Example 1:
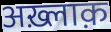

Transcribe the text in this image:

अख़्लाक़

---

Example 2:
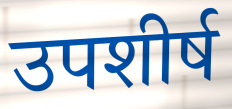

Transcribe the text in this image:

उपशीर्ष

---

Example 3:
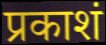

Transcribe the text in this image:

प्रकाशं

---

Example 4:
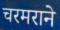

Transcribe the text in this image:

चरमराने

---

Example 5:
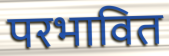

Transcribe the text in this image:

परभावित